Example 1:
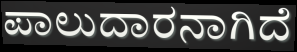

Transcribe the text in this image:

ಪಾಲುದಾರನಾಗಿದೆ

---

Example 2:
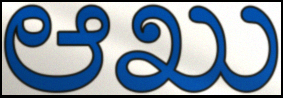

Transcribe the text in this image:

ಆಖು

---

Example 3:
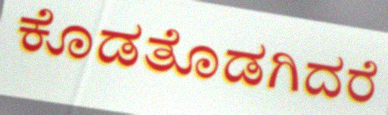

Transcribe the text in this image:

ಕೊಡತೊಡಗಿದರೆ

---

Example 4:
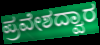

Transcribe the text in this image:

ಪ್ರವೇಶದ್ವಾರ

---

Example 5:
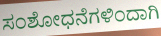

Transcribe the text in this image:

ಸಂಶೋಧನೆಗಳಿಂದಾಗಿ